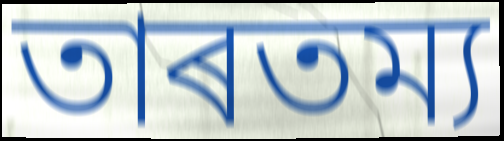
তাৰতম্য